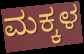
ಮಕ್ಕಳ